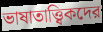
ভাষাতাত্ত্বিকদের